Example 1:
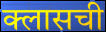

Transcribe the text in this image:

क्‍लासची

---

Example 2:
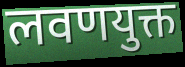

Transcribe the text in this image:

लवणयुक्त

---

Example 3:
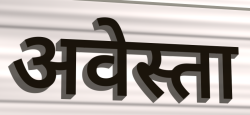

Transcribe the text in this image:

अवेस्ता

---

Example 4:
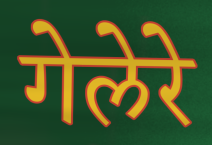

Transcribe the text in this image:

गेलेरे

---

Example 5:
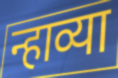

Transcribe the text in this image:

न्हाव्या